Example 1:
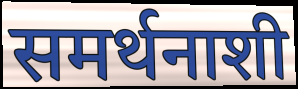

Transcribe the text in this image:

समर्थनाशी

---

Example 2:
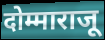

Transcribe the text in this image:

दोम्माराजू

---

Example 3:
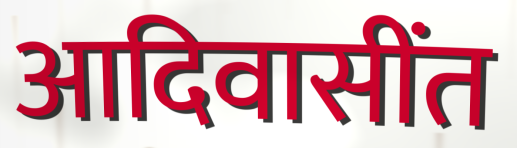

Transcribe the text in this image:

आदिवासींत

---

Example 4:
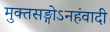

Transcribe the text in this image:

मुक्तसङ्गोऽनहंवादी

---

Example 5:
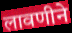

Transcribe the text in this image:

लावणीने